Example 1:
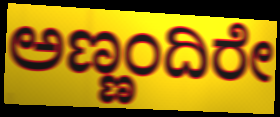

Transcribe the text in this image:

ಅಣ್ಣಂದಿರೇ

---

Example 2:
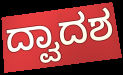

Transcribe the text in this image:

ದ್ವಾದಶ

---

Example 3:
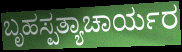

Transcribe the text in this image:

ಬೃಹಸ್ಪತ್ಯಾಚಾರ್ಯರ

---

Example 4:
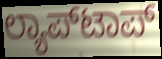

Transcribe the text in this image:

ಲ್ಯಾಪ್‍ಟಾಪ್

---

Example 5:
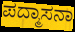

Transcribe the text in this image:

ಪದ್ಮಾಸನಾ